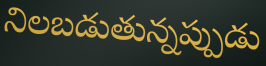
నిలబడుతున్నప్పుడు